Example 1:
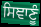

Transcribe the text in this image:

ਸਿਞਾਣੂੰ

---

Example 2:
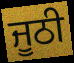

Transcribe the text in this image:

ਜੂਠੀ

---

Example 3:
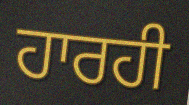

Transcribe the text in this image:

ਹਾਰਹੀ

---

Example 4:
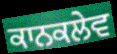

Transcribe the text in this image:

ਕਾਨਕਲੇਵ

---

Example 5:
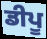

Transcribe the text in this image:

ਡੀਪੂ